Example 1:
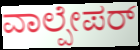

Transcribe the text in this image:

ವಾಲ್ಪೇಪರ್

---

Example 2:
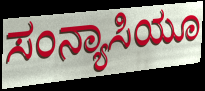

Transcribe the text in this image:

ಸಂನ್ಯಾಸಿಯೂ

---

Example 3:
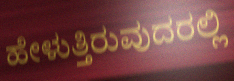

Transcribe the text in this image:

ಹೇಳುತ್ತಿರುವುದರಲ್ಲಿ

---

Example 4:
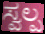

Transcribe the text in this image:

ಸ್ವಲ್ಪ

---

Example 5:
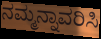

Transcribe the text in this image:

ನಮ್ಮನ್ನಾವರಿಸಿ